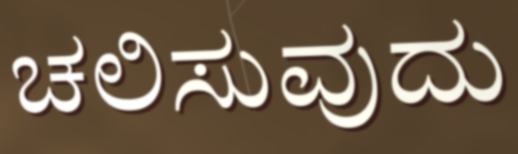
ಚಲಿಸುವುದು